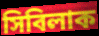
সিবিলাক